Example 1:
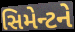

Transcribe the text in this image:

સિમેન્ટને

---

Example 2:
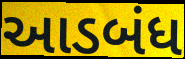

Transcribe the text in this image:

આડબંધ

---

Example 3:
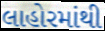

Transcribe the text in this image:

લાહોરમાંથી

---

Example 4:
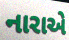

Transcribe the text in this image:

નારાએ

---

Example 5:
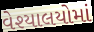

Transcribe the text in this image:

વેશ્યાલયોમાં